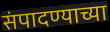
संपादण्याच्या